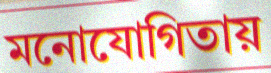
মনোযোগিতায়